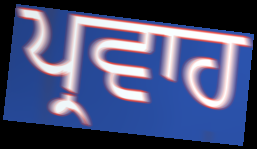
ਪ੍ਰਵਾਹ